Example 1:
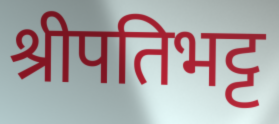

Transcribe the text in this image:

श्रीपतिभट्ट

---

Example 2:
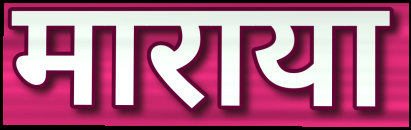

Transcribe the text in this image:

माराया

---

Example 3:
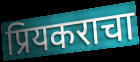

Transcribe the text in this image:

प्रियकराचा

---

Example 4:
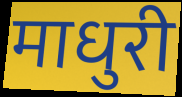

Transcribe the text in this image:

माधुरी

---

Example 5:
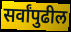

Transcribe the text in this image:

सर्वांपुढील